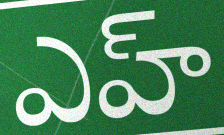
ఎహ్